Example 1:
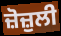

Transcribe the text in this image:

ਜ਼ੋਜ਼ੁਲੀ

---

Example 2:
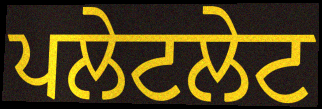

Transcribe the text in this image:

ਪਲੇਟਲੇਟ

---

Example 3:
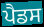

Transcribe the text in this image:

ਪੈਡਸ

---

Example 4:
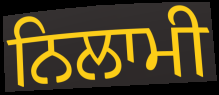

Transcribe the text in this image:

ਨਿਲਾਮੀ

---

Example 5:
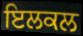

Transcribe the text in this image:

ਇਲਕਲ